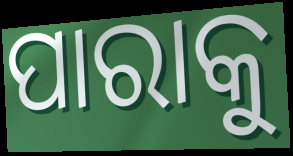
ପାରାକୁ